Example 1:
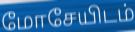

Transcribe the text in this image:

மோசேயிடம்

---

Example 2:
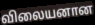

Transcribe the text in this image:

விலையனான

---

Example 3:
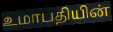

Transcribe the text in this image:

உமாபதியின்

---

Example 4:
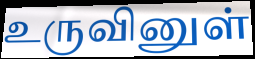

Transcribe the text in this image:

உருவினுள்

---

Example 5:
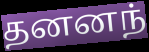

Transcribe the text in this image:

தனனந்